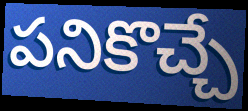
పనికొచ్చే